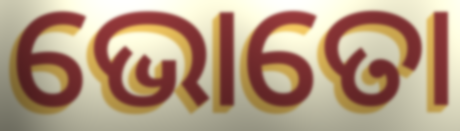
ଭୋତୋ